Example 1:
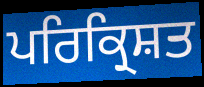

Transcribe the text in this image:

ਪਰਿਕ੍ਰਿਸ਼ਤ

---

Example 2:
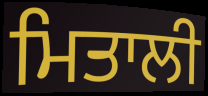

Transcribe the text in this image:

ਮਿਤਾਲੀ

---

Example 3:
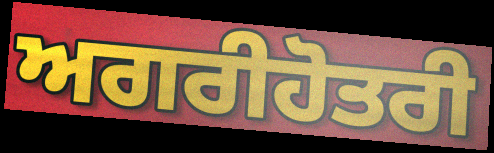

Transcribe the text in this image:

ਅਗਰੀਹੋਤਰੀ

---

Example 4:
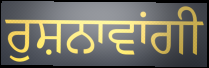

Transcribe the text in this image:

ਰੁਸ਼ਨਾਵਾਂਗੀ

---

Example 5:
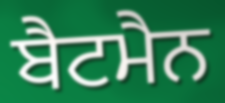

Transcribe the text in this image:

ਬੈਟਮੈਨ